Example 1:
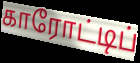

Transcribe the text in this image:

காரோட்டிப்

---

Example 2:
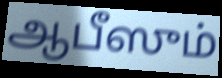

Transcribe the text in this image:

ஆபீஸும்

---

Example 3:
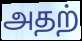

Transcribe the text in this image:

அதற்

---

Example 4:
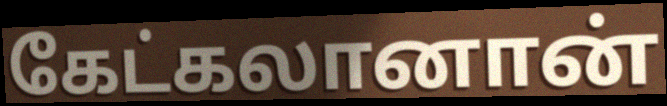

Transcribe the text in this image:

கேட்கலானான்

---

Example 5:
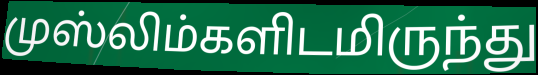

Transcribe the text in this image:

முஸ்லிம்களிடமிருந்து